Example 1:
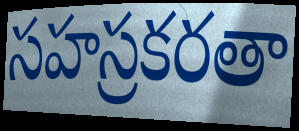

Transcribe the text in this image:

సహస్రకరతా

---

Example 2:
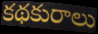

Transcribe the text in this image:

కథకురాలు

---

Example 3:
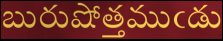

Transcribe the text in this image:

బురుషోత్తముఁడు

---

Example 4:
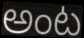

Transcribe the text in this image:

అంట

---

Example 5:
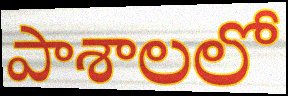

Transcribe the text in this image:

పాశాలలో